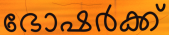
ഭോഷർക്ക്